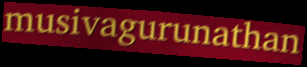
musivagurunathan